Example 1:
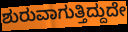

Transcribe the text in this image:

ಶುರುವಾಗುತ್ತಿದ್ದುದೇ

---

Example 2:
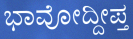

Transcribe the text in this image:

ಭಾವೋದ್ದೀಪ್ತ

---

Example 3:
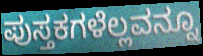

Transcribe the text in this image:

ಪುಸ್ತಕಗಳೆಲ್ಲವನ್ನೂ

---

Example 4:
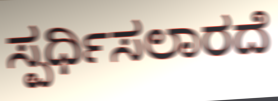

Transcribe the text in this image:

ಸ್ಪರ್ಧಿಸಲಾರದೆ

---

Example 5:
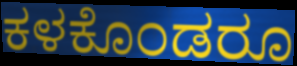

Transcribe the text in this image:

ಕಳಕೊಂಡರೂ